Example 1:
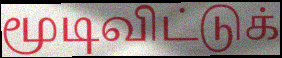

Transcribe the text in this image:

மூடிவிட்டுக்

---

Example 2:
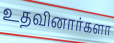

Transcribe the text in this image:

உதவினார்களா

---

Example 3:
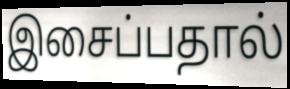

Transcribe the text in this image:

இசைப்பதால்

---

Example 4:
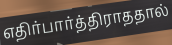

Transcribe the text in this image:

எதிர்பார்த்திராததால்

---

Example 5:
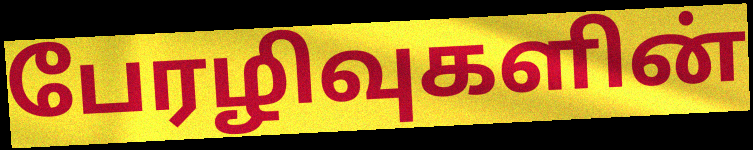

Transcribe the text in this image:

பேரழிவுகளின்